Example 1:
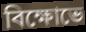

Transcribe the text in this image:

বিক্ষোভে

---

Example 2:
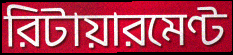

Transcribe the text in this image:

রিটায়ারমেণ্ট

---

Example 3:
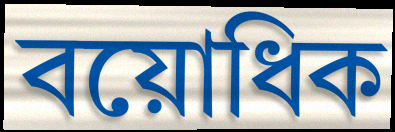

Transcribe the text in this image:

বয়োধিক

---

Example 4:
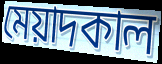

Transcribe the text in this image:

মেয়াদকাল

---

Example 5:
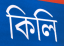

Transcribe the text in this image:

কিলি